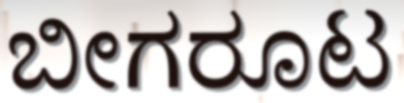
ಬೀಗರೂಟ